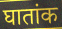
घातांक